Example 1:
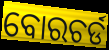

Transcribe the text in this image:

ବୋରଚର୍ଡ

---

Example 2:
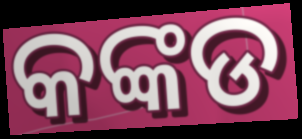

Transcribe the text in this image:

କଙ୍କଡ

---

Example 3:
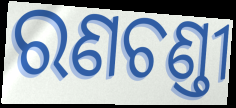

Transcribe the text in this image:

ରଣଚଣ୍ଡୀ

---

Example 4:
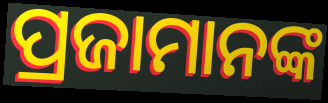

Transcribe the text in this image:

ପ୍ରଜାମାନଙ୍କ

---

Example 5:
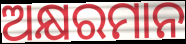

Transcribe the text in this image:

ଅକ୍ଷରମାନ